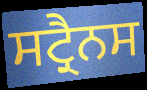
ਸਟ੍ਰੈਨਸ